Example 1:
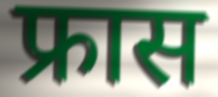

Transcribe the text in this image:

फ्रास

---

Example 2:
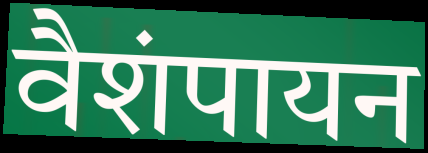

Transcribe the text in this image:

वैशंपायन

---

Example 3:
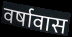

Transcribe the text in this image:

वर्षावास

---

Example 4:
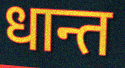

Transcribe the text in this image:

धान्त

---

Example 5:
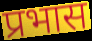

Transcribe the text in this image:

प्रभास